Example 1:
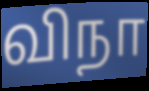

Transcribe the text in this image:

விநா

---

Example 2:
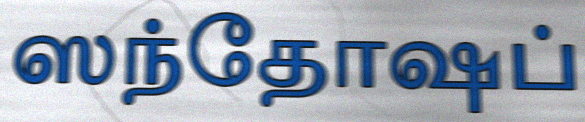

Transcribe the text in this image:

ஸந்தோஷப்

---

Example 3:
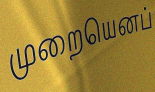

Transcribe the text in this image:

முறையெனப்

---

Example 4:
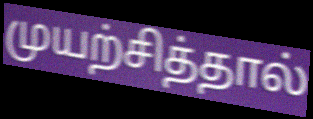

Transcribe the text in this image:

முயற்சித்தால்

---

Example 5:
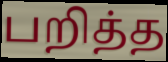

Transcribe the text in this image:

பறித்த